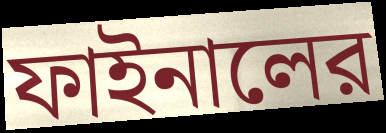
ফাইনালের